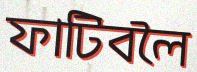
ফাটিবলৈ